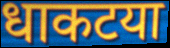
धाकटया